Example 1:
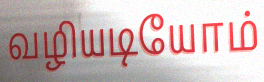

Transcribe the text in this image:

வழியடியோம்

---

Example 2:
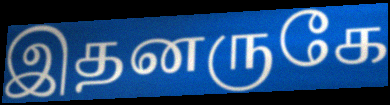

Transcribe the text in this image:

இதனருகே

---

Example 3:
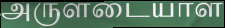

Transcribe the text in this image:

அருளடையாள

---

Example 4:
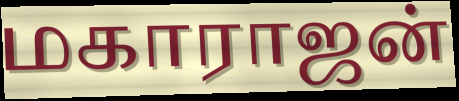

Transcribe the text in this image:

மகாராஜன்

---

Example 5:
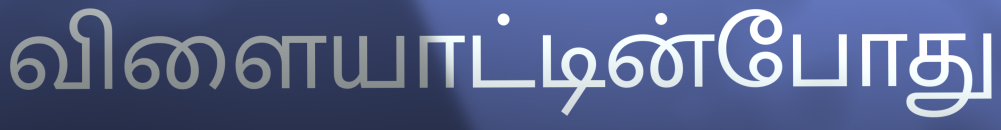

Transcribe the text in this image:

விளையாட்டின்போது